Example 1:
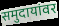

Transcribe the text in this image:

समुदायांवर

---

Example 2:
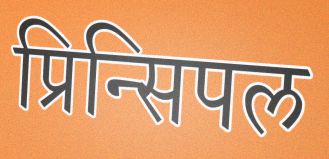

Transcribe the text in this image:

प्रिन्सिपल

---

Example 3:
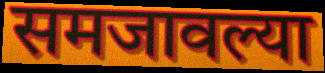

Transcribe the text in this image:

समजावल्या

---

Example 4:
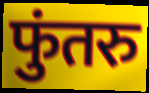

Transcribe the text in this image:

फुंतरु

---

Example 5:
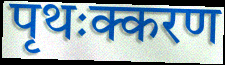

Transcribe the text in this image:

पृथःक्करण